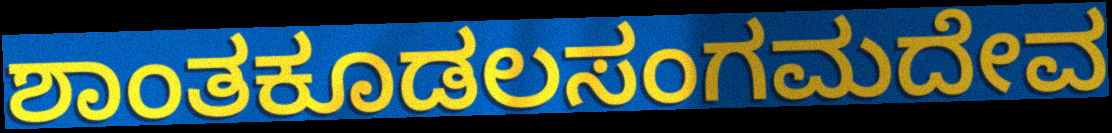
ಶಾಂತಕೂಡಲಸಂಗಮದೇವ